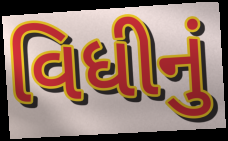
વિધીનું